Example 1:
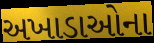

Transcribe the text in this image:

અખાડાઓના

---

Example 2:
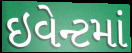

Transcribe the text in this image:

ઇવેન્ટમાં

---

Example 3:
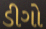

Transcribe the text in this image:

ડીગો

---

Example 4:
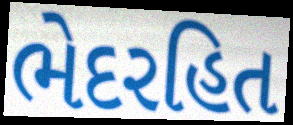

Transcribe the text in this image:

ભેદરહિત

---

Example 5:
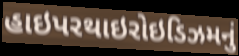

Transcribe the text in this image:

હાઇપરથાઇરોઇડિઝમનું